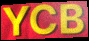
YCB